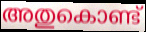
അതുകൊണ്ട്